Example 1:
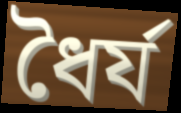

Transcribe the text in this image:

ধৈর্য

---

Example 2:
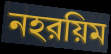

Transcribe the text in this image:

নহরয়িম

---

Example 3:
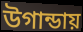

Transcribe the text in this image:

উগান্ডায়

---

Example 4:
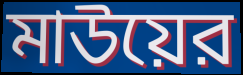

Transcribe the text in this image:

মাউয়ের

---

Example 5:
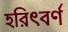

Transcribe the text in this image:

হরিৎবর্ণ